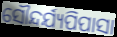
ସୌନ୍ଦର୍ଯ୍ୟପିପାସା